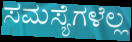
ಸಮಸ್ಯೆಗಳೆಲ್ಲ